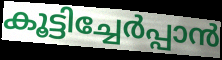
കൂട്ടിച്ചേർപ്പാൻ